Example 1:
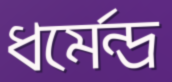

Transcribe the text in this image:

ধৰ্মেন্দ্ৰ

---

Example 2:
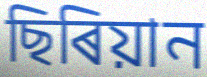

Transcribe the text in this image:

ছিৰিয়ান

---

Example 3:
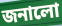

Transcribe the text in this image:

জনালো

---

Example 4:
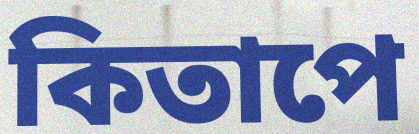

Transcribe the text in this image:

কিতাপে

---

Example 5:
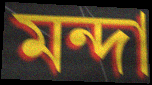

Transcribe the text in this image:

মন্দা